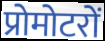
प्रोमोटरों